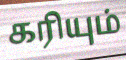
கரியும்